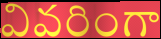
వివరింగా